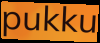
pukku